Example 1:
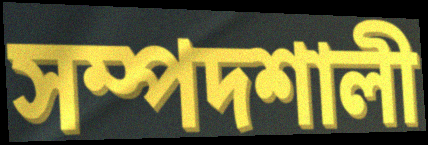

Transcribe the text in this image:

সম্পদশালী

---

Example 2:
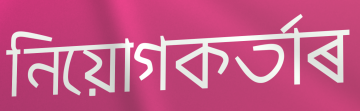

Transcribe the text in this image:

নিয়োগকৰ্তাৰ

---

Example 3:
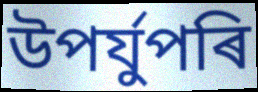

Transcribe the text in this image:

উপৰ্যুপৰি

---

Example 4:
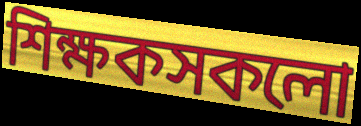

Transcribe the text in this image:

শিক্ষকসকলো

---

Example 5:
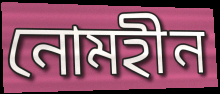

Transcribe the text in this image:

নোমহীন